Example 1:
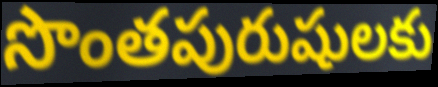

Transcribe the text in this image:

సొంతపురుషులకు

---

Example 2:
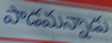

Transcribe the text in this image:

పాడమన్నాడు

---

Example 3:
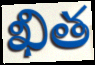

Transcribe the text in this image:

ఖిత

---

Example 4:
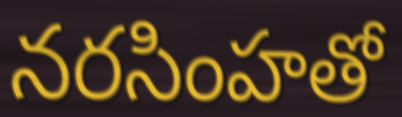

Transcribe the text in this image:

నరసింహతో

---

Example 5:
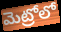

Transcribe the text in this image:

మెట్రోలో